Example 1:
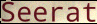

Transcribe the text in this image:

Seerat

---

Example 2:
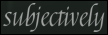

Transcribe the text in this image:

subjectively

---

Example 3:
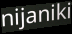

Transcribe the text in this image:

nijaniki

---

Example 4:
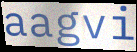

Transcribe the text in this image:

aagvi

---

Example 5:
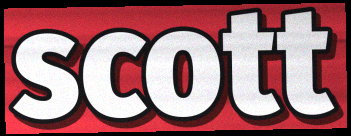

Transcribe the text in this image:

scott